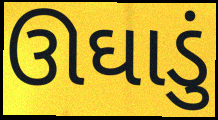
ઊઘાડું